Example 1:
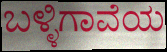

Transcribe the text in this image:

ಬಳ್ಳಿಗಾವೆಯ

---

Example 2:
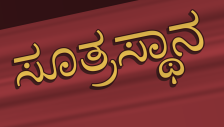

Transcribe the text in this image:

ಸೂತ್ರಸ್ಥಾನ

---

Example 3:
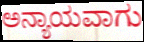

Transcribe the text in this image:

ಅನ್ಯಾಯವಾಗು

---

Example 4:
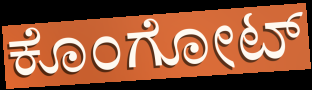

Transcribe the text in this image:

ಕೊಂಗೋಟ್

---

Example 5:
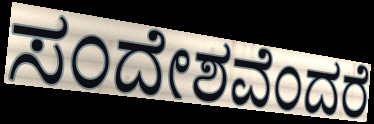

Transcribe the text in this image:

ಸಂದೇಶವೆಂದರೆ